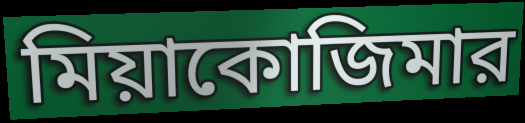
মিয়াকোজিমার